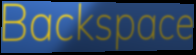
Backspace